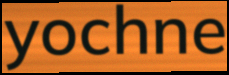
yochne